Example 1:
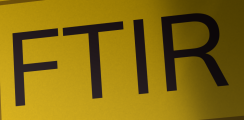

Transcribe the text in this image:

FTIR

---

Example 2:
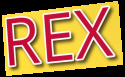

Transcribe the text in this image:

REX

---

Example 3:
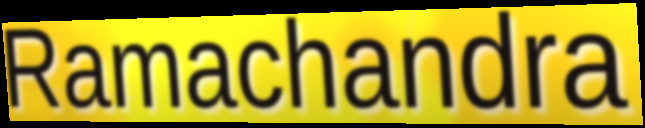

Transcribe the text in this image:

Ramachandra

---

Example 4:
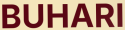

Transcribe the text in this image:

BUHARI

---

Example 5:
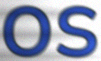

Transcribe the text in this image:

os